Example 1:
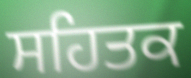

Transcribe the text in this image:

ਸਹਿਤਕ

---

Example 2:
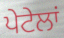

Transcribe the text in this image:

ਪੇਟੇਲਾਂ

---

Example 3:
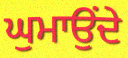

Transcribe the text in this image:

ਘੁਮਾਉਂਦੇ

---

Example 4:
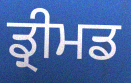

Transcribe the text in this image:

ਡ੍ਰੀਮਡ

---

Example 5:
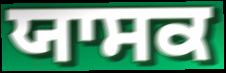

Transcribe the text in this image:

ਯਾਸਕ